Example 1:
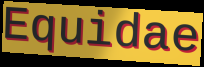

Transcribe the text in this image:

Equidae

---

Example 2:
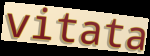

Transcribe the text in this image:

vitata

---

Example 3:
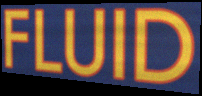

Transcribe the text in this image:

FLUID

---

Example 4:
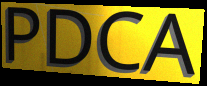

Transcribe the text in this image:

PDCA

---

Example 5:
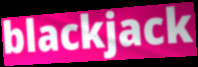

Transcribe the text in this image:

blackjack